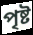
পৃষ্ট